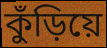
কুঁড়িয়ে